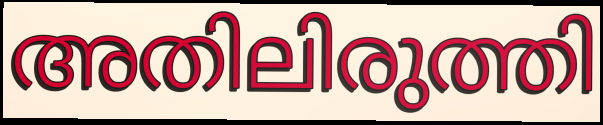
അതിലിരുത്തി